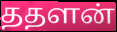
ததளன்